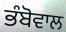
ਭੰਬੋਵਾਲ